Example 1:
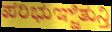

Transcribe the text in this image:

ಪರಿಭುಞ್ಜಿತುನ್ತಿ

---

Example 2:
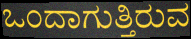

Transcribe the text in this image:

ಒಂದಾಗುತ್ತಿರುವ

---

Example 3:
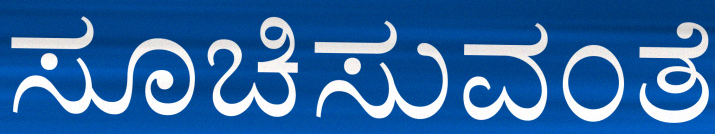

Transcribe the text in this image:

ಸೂಚಿಸುವಂತೆ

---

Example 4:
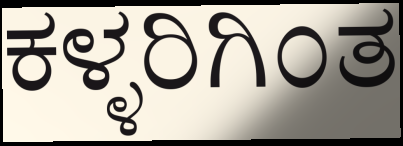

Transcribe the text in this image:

ಕಳ್ಳರಿಗಿಂತ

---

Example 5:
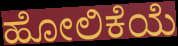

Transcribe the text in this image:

ಹೋಲಿಕೆಯೆ